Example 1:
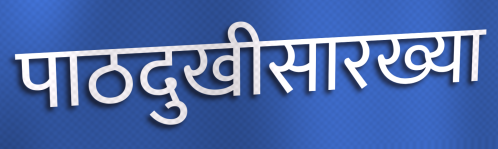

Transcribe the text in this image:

पाठदुखीसारख्या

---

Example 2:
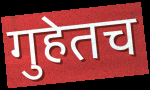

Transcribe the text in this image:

गुहेतच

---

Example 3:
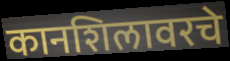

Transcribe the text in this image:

कानशिलावरचे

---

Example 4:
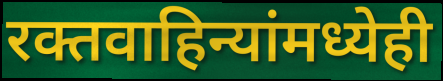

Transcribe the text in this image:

रक्तवाहिन्यांमध्येही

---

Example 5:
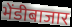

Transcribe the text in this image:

भेंडीबाजार